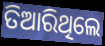
ତିଆରିଥିଲେ